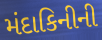
મંદાકિનીની